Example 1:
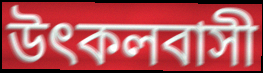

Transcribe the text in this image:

উৎকলবাসী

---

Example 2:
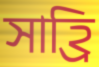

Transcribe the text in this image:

সাহ্রি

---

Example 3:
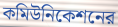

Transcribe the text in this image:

কমিউনিকেশনের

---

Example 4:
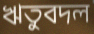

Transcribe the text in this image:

ঋতুবদল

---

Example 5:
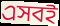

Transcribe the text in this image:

এসবই